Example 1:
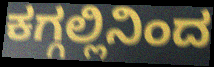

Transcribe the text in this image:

ಕಗ್ಗಲ್ಲಿನಿಂದ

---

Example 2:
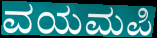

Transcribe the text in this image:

ವಯಮಪಿ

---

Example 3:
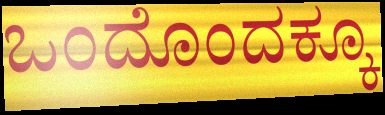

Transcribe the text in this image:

ಒಂದೊಂದಕ್ಕೂ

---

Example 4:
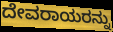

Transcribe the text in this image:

ದೇವರಾಯರನ್ನು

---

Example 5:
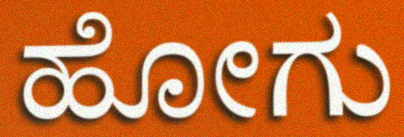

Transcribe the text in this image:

ಹೋಗು